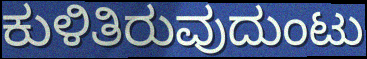
ಕುಳಿತಿರುವುದುಂಟು